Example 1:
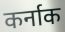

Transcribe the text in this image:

कर्नाक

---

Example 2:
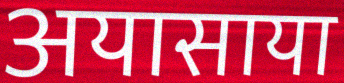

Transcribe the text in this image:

अयासाया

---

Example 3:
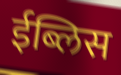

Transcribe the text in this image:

ईब्लिस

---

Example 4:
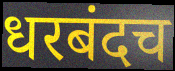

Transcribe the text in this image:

धरबंदच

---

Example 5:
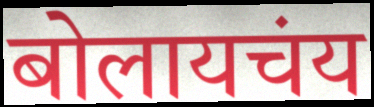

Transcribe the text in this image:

बोलायचंय